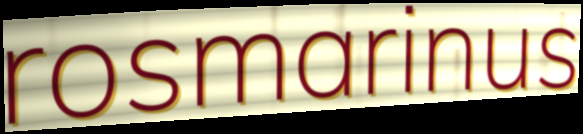
rosmarinus